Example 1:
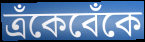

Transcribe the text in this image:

ত্রঁকেবেঁকে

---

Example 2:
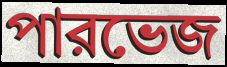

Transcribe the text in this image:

পারভেজ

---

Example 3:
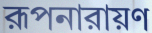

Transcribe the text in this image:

রূপনারায়ণ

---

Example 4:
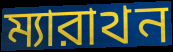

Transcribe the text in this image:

ম্যারাথন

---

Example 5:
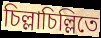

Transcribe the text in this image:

চিল্লাচিল্লিতে